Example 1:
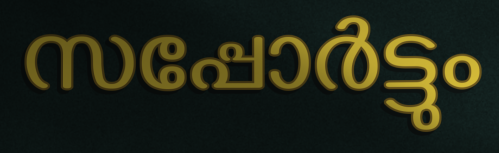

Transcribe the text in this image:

സപ്പോർട്ടും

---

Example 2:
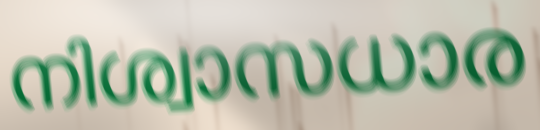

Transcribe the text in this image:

നിശ്വാസധാര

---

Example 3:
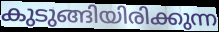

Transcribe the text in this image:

കുടുങ്ങിയിരിക്കുന്ന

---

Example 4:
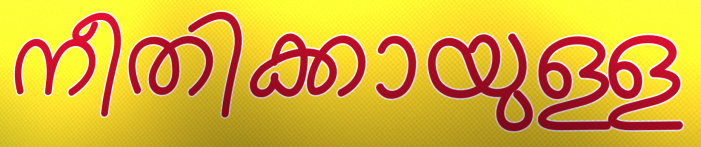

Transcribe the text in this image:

നീതിക്കായുള്ള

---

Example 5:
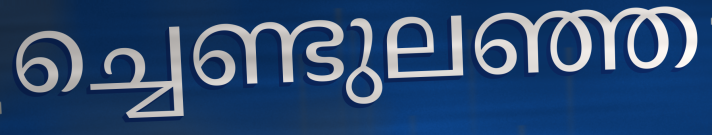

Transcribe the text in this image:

ച്ചെണ്ടുലഞ്ഞ